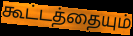
கூட்டத்தையும்